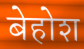
बेहोश